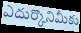
ఎదుర్కొనిమీకు